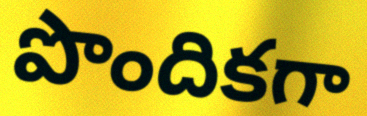
పొందికగా